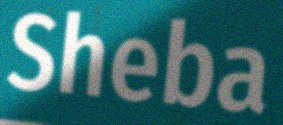
Sheba